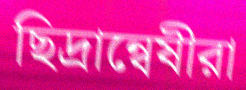
ছিদ্রান্বেষীরা